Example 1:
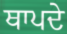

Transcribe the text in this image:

ਥਾਪਦੇ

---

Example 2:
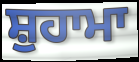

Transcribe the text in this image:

ਸ਼ੁਹਾਮਾ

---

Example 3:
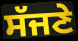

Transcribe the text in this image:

ਸੱਜਣੇ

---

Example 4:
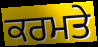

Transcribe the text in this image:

ਕਰਮਤੇ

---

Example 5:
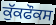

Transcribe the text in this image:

ਕੁੱਕਫੌਕਸ